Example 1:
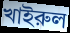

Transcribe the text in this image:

খাইরুল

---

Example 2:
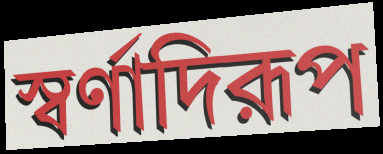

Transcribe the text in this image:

স্বর্ণাদিরূপ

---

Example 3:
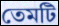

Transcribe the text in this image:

তেমটি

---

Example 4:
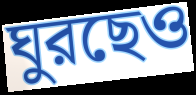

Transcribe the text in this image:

ঘুরছেও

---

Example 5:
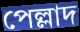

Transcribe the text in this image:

পেল্লাদ